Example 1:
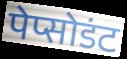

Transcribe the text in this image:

पेप्सोडंट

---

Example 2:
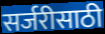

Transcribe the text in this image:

सर्जरीसाठी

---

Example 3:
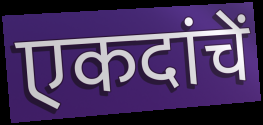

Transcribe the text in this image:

एकदांचें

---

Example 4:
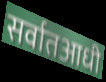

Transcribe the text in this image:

सर्वातआधी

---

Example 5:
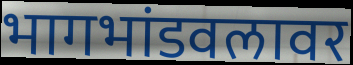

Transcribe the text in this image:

भागभांडवलावर